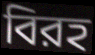
বিরহ